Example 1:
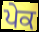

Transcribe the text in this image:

ਪੇਕ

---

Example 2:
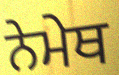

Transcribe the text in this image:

ਨੇਮੇਥ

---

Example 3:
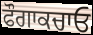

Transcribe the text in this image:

ਫੌਗਾਕਚਾਓ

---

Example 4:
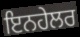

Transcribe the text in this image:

ਇਨਹੇਲਰ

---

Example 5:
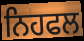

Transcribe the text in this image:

ਨਿਹਫਲ